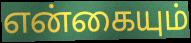
என்கையும்